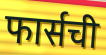
फार्सची